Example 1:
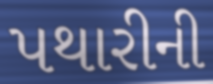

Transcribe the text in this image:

પથારીની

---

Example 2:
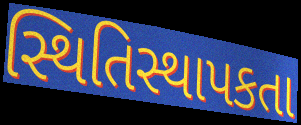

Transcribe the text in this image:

સ્થિતિસ્થાપકતા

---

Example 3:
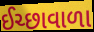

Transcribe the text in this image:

ઈચ્છાવાળા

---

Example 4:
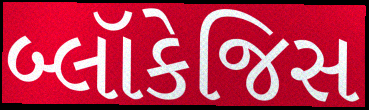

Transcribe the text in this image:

બ્લૉકેજિસ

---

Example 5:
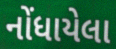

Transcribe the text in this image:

નોંધાયેલા